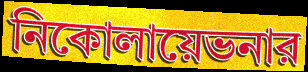
নিকোলায়েভনার